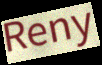
Reny